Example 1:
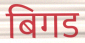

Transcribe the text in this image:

बिगड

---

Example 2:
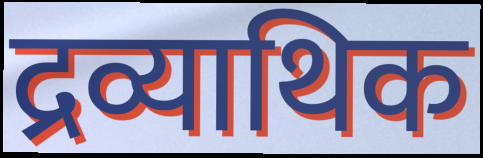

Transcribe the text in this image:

द्रव्याथिक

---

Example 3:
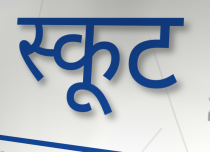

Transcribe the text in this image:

स्कूट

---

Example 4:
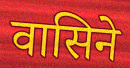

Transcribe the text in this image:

वासिने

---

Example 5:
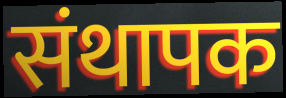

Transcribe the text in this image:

संथापक